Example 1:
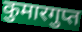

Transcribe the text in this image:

कुमारगुप्त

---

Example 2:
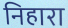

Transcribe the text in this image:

निहारा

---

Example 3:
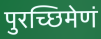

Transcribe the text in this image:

पुरच्छिमेणं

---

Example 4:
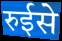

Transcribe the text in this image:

रुईसे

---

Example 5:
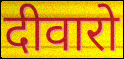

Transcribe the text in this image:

दीवारो